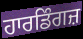
ਹਾਰਡਿੰਗਜ਼